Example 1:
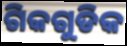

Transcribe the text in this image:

ଗିକଗୁଡିକ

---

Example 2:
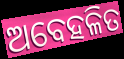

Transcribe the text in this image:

ଅବେହଳିତ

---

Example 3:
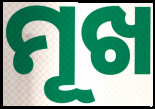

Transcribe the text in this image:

ମୂଖ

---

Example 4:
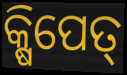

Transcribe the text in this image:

କ୍ଷିପେତ୍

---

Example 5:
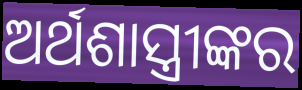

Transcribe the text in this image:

ଅର୍ଥଶାସ୍ତ୍ରୀଙ୍କର